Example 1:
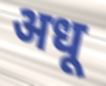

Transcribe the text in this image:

अधू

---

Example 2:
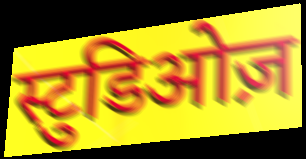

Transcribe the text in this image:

स्टुडिओज़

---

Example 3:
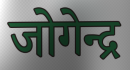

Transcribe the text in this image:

जोगेन्द्र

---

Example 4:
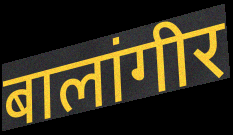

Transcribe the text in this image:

बालांगीर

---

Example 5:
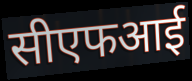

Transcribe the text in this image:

सीएफआई